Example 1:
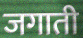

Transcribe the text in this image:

जगाती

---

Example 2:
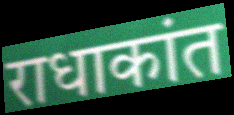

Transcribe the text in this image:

राधाकांत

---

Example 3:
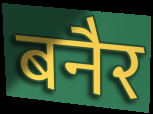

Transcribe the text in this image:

बनैर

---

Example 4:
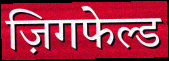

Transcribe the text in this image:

ज़िगफेल्ड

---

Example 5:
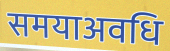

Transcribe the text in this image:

समयाअवधि